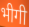
भीगी